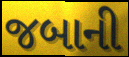
જબાની